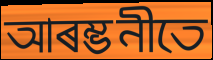
আৰম্ভনীতে